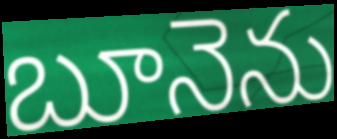
బూనెను